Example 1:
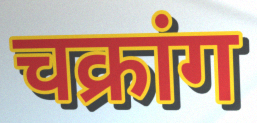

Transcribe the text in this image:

चक्रांग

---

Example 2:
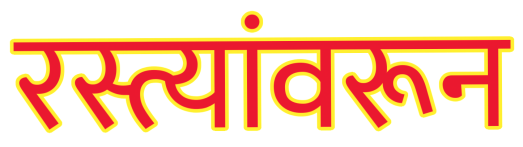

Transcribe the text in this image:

रस्त्यांवरून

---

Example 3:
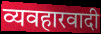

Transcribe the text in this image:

व्यवहारवादी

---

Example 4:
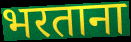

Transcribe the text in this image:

भरताना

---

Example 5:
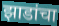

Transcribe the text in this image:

झाडांचा